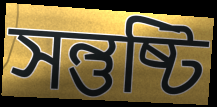
সন্তুষ্টি